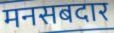
मनसबदार